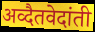
अव्दैतवेदांती